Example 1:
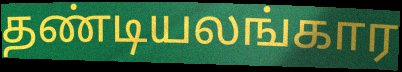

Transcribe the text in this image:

தண்டியலங்கார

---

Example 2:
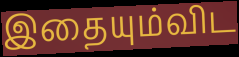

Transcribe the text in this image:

இதையும்விட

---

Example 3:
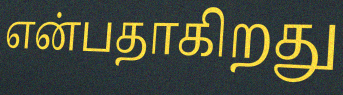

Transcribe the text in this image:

என்பதாகிறது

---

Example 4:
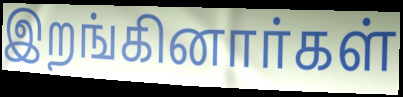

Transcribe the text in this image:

இறங்கினார்கள்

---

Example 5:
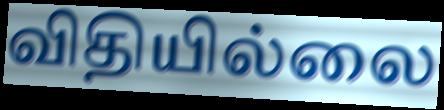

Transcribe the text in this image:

விதியில்லை